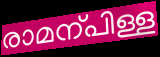
രാമന്പിള്ള